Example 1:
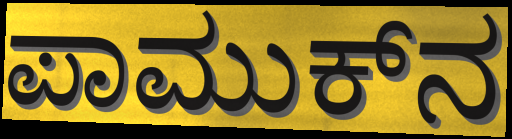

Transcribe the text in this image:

ಪಾಮುಕ್‍ನ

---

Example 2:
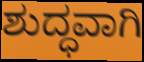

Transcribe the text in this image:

ಶುದ್ಧವಾಗಿ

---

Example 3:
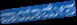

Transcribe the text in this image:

ವಾಯಾಮೇನ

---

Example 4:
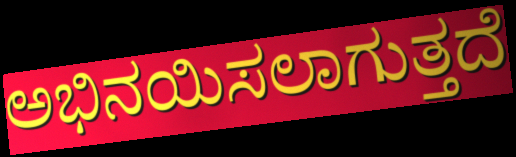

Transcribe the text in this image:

ಅಭಿನಯಿಸಲಾಗುತ್ತದೆ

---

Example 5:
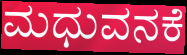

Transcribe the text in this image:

ಮಧುವನಕೆ